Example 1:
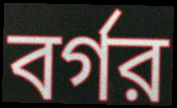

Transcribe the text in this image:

বর্গর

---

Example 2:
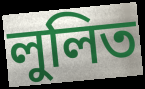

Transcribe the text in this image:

লুলিত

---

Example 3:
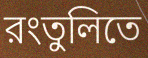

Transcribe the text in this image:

রংতুলিতে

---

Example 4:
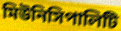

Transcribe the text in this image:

মিউনিসিপালিটি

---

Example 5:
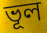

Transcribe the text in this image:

ভূল